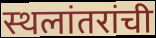
स्थलांतरांची